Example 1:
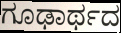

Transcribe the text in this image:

ಗೂಢಾರ್ಥದ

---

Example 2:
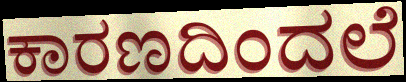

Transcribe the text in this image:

ಕಾರಣದಿಂದಲೆ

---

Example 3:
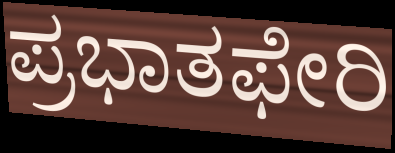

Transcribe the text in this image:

ಪ್ರಭಾತಫೇರಿ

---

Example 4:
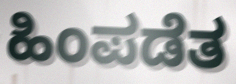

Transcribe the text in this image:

ಹಿಂಪಡೆತ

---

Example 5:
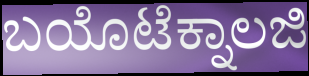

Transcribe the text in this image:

ಬಯೊಟೆಕ್ನಾಲಜಿ